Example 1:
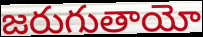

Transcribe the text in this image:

జరుగుతాయో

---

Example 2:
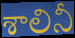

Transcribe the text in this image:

శాలినీ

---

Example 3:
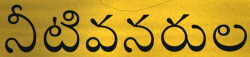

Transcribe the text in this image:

నీటివనరుల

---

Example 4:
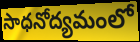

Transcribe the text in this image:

సాధనోద్యమంలో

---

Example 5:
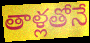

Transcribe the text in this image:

తాళ్లతోనే